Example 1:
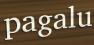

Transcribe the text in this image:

pagalu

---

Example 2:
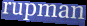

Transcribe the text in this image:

rupman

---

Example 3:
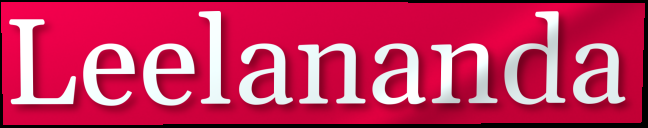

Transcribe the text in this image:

Leelananda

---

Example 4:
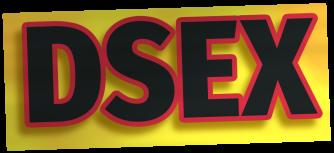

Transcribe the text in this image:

DSEX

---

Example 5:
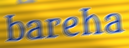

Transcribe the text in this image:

bareha